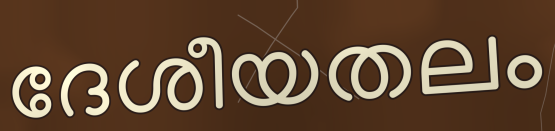
ദേശീയതലം